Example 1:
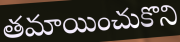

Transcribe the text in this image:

తమాయించుకొని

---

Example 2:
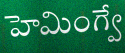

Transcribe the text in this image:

హెమింగ్వే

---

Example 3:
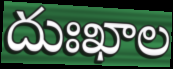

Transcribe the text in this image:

దుఃఖాల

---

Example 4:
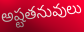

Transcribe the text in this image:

అష్టతనువులు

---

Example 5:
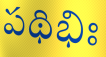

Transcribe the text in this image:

పథిభిః